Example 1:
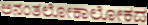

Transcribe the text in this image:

ಅನಂತಲೋಕಾಲೋಕದ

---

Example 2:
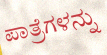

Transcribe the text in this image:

ಪಾತ್ರೆಗಳನ್ನು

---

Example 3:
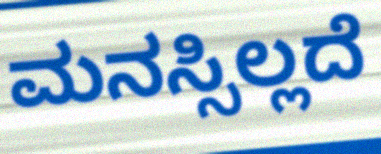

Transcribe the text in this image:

ಮನಸ್ಸಿಲ್ಲದೆ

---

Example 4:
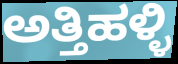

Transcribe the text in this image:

ಅತ್ತಿಹಳ್ಳಿ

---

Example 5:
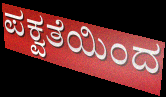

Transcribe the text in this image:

ಪಕ್ವತೆಯಿಂದ